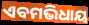
ଏବମଭିଧାୟ